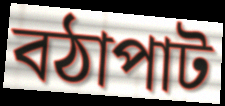
বঠাপাট